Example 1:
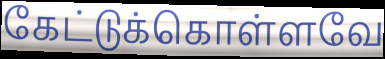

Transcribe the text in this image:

கேட்டுக்கொள்ளவே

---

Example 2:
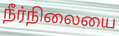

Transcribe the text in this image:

நீர்நிலையை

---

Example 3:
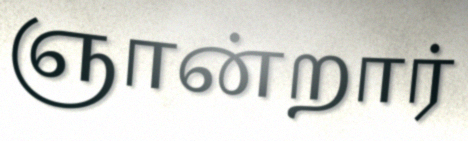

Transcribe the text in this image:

ஞான்றார்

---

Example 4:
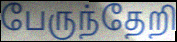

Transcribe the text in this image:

பேருந்தேறி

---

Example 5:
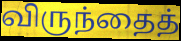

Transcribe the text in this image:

விருந்தைத்